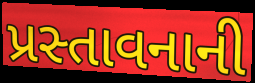
પ્રસ્તાવનાની